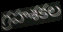
గ్రహశకల